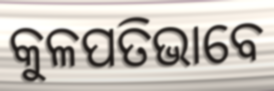
କୁଳପତିଭାବେ